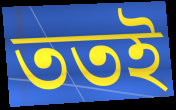
ততই